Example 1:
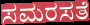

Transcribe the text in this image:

ಸಮರಸತೆ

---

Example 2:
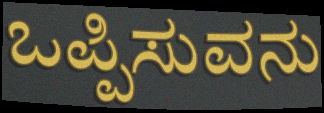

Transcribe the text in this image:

ಒಪ್ಪಿಸುವನು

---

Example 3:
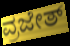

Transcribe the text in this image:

ವ್ರಜೇತ್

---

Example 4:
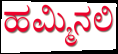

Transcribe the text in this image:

ಹಮ್ಮಿನಲಿ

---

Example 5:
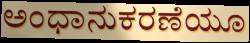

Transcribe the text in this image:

ಅಂಧಾನುಕರಣೆಯೂ